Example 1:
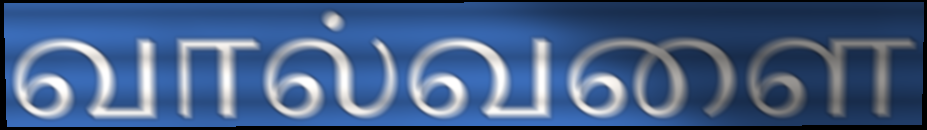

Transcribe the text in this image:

வால்வளை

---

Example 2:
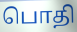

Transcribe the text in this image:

பொதி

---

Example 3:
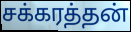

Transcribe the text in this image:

சக்கரத்தன்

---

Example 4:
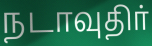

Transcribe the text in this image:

நடாவுதிர்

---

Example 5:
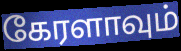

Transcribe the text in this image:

கேரளாவும்